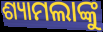
ଶ୍ୟାମଲାଙ୍କୁ